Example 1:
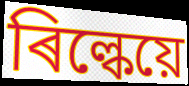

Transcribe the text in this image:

ৰিল্কেয়ে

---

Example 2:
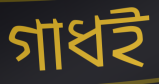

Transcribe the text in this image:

গাধই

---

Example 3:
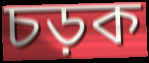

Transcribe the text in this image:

চড়ক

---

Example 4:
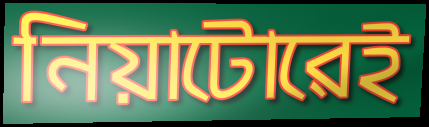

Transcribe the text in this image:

নিয়াটোৱেই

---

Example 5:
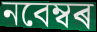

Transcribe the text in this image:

নবেম্বৰ